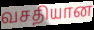
வசதியான